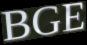
BGE